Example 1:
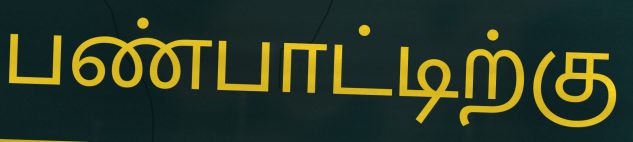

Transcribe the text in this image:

பண்பாட்டிற்கு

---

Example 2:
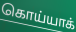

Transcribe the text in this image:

கொய்யாக்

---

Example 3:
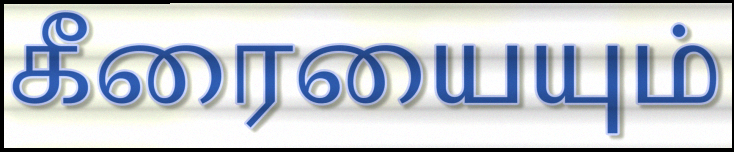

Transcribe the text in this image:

கீரையையும்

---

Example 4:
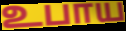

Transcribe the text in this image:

உபாய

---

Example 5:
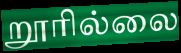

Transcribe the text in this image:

றூரில்லை